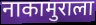
नाकामुराला